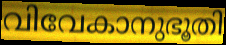
വിവേകാനുഭൂതി